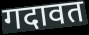
गदावत